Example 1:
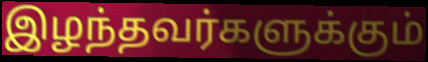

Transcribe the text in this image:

இழந்தவர்களுக்கும்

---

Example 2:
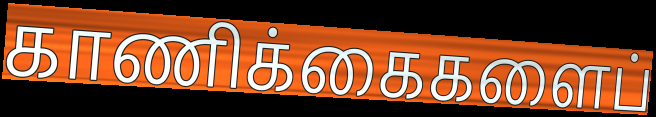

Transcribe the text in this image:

காணிக்கைகளைப்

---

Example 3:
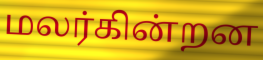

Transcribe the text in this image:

மலர்கின்றன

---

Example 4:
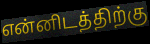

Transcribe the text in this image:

என்னிடத்திற்கு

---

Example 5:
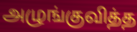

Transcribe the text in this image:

அழுங்குவித்த